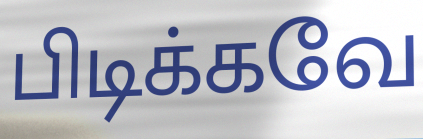
பிடிக்கவே